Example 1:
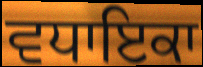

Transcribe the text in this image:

ਵਧਾਇਕਾ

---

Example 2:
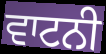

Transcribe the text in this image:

ਵਾਟਨੀ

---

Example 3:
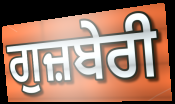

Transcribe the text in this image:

ਗੁਜ਼ਬੇਰੀ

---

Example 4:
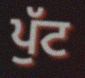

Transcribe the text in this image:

ਪੁੱਟ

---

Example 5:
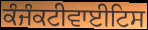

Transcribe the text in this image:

ਕੰਜੰਕਟੀਵਾਈਟਿਸ